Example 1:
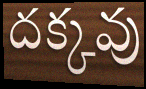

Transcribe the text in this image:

దక్కవు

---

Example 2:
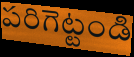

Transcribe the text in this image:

పరిగెట్టండి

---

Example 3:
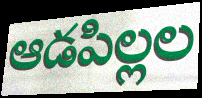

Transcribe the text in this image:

ఆడపిల్లల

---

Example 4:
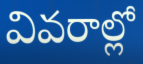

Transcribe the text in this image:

వివరాల్లో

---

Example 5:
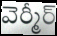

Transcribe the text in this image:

వెర్మీర్